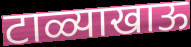
टाळ्याखाऊ